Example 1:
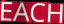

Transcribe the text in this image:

EACH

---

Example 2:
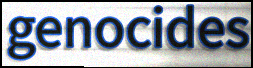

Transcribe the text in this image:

genocides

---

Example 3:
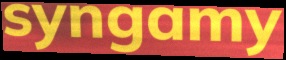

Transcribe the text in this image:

syngamy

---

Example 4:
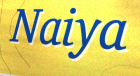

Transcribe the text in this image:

Naiya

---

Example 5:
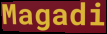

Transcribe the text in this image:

Magadi